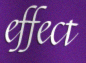
effect